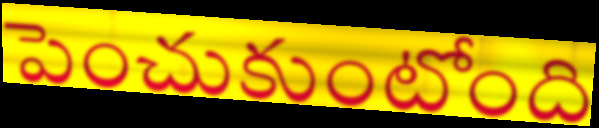
పెంచుకుంటోంది